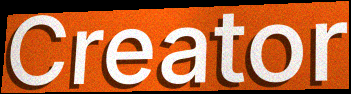
Creator